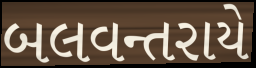
બલવન્તરાયે